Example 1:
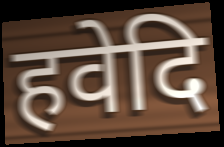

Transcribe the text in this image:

हवेदि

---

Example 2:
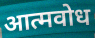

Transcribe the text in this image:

आत्मवोध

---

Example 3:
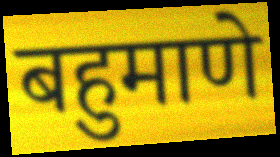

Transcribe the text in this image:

बहुमाणे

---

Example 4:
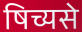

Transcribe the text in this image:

षिच्यसे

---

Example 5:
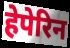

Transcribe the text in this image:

हेपेरिन